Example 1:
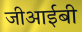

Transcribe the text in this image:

जीआईबी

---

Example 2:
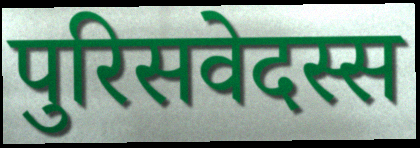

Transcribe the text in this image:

पुरिसवेदस्स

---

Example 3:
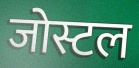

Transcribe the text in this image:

जोस्टल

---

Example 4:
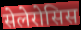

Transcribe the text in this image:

सेलेरोसिस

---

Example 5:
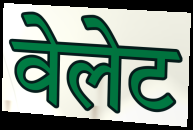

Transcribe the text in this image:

वेलेट